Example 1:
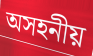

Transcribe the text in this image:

অসহনীয়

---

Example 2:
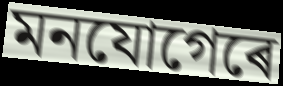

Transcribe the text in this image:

মনযোগেৰে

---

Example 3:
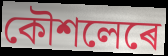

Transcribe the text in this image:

কৌশলেৰে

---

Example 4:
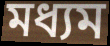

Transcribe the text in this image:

মধ্যম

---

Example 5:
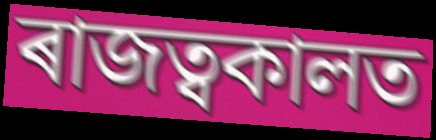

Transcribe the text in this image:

ৰাজত্বকালত